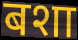
बशा